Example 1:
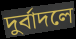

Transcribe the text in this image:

দুর্বাদলে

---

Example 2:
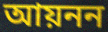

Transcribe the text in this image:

আয়নন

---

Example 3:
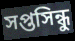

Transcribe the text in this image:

সপ্তসিন্ধু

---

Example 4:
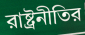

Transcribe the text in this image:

রাষ্ট্রনীতির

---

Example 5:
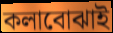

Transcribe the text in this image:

কলাবোঝাই